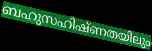
ബഹുസഹിഷ്ണതയിലും